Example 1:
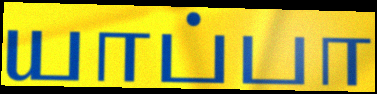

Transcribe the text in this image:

யாப்பா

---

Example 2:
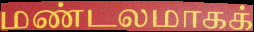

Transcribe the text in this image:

மண்டலமாகக்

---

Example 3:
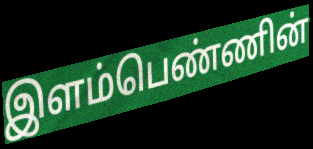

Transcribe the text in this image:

இளம்பெண்ணின்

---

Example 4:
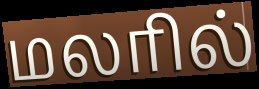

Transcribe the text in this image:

மலரில்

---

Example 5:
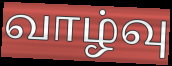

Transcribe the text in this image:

வாழ்வு